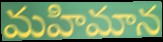
మహిమాన